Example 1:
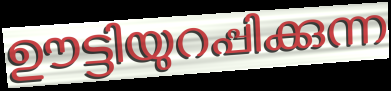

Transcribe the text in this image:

ഊട്ടിയുറപ്പിക്കുന്ന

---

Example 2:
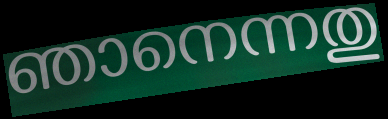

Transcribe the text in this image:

ഞാനെന്നതു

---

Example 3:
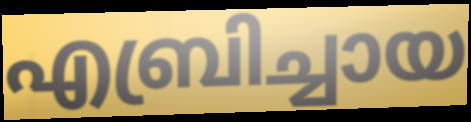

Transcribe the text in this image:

എബ്രിച്ചായ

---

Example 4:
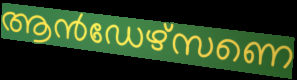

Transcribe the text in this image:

ആൻഡേഴ്സണെ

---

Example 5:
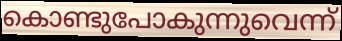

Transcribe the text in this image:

കൊണ്ടുപോകുന്നുവെന്ന്